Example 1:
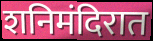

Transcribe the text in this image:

शनिमंदिरात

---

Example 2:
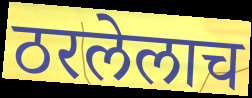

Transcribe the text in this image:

ठरलेलाच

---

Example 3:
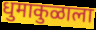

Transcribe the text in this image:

धुमाकुळाला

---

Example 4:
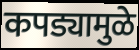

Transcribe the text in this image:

कपड्यामुळे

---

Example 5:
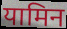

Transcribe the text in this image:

यामिन